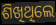
ଶିଖିଥିଲେ